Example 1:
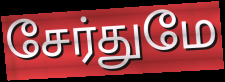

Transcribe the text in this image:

சேர்துமே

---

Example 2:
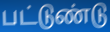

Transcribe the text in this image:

பட்டுண்டு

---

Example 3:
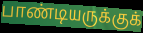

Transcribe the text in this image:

பாண்டியருக்குக்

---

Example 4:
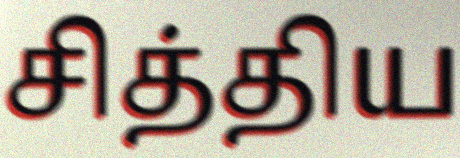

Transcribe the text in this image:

சித்திய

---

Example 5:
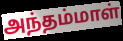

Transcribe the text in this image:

அந்தம்மாள்